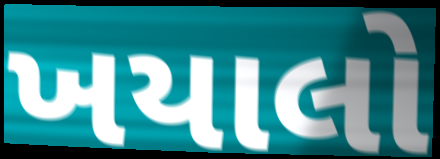
ખયાલો